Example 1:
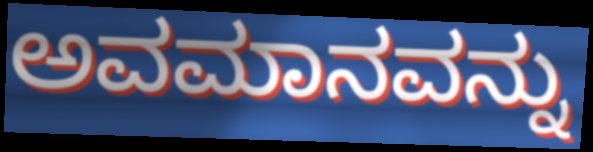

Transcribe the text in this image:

ಅವಮಾನವನ್ನು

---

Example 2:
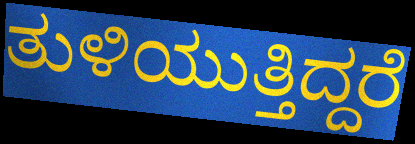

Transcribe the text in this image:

ತುಳಿಯುತ್ತಿದ್ದರೆ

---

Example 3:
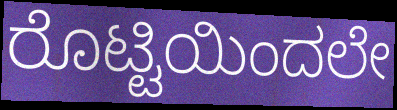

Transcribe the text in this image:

ರೊಟ್ಟಿಯಿಂದಲೇ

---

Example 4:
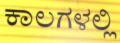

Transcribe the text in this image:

ಕಾಲಗಳಲ್ಲಿ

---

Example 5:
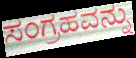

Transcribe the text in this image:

ಸಂಗ್ರಹವನ್ನು